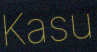
Kasu